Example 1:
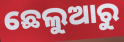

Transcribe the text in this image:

ଛେଲୁଆରୁ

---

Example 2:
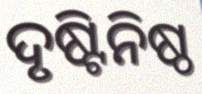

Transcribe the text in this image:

ଦୃଷ୍ଟିନିଷ୍ଠ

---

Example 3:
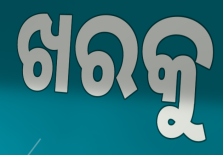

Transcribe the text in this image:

ଖରକୁ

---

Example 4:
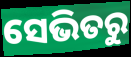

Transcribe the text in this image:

ସେଭିତରୁ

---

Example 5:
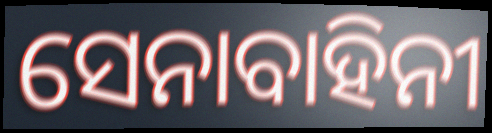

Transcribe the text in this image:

ସେନାବାହିନୀ